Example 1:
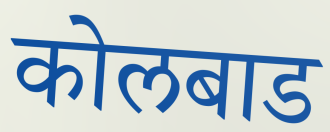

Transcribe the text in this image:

कोलबाड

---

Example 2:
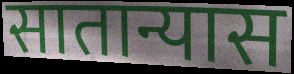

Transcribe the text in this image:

सातान्यास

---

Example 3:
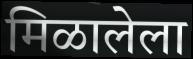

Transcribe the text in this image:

मिळालेला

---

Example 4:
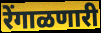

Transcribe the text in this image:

रेंगाळणारी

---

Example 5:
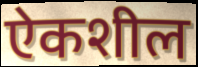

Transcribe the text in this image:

ऐकशील